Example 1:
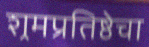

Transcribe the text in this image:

श्रमप्रतिष्ठेचा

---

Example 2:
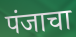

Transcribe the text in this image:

पंजाचा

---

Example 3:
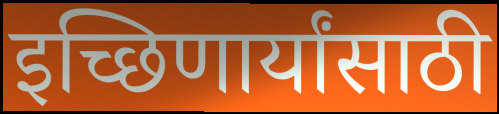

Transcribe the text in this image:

इच्छिणार्यांसाठी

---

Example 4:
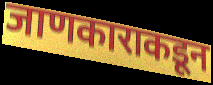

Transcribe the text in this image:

जाणकाराकडून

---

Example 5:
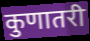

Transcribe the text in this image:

कुणातरी